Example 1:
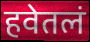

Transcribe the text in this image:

हवेतलं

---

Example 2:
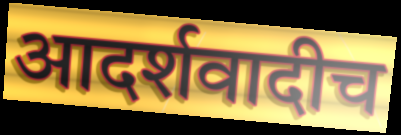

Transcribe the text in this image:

आदर्शवादीच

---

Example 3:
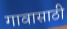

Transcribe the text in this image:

गावासाठी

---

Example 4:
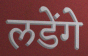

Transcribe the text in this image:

लडेंगे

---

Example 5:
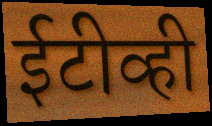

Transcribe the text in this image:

ईटीव्ही